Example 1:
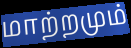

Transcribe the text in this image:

மாற்றமும்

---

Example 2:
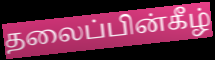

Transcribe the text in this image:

தலைப்பின்கீழ்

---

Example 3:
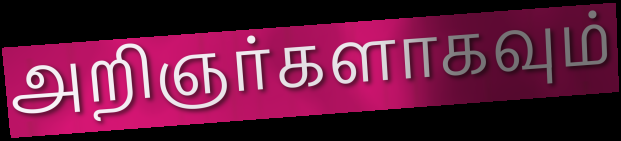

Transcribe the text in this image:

அறிஞர்களாகவும்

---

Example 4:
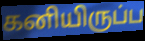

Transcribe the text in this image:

கனியிருப்ப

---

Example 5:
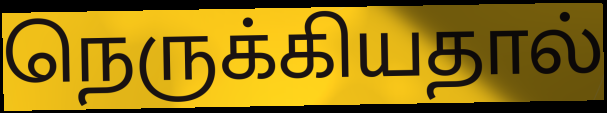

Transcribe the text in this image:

நெருக்கியதால்